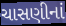
ચાસણીનાં